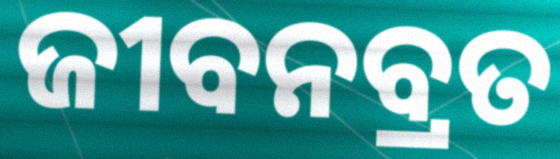
ଜୀବନବ୍ରତ